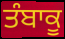
ਤੰਬਾਕੂ